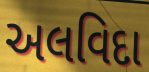
અલવિદા